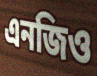
এনজিও